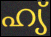
ഹ്യ്